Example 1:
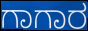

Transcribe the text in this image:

ಗಾಗಾರ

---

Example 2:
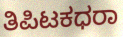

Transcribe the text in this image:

ತಿಪಿಟಕಧರಾ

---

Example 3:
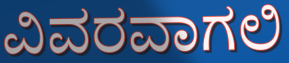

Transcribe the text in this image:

ವಿವರವಾಗಲಿ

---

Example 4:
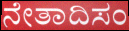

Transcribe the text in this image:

ನೇತಾದಿಸಂ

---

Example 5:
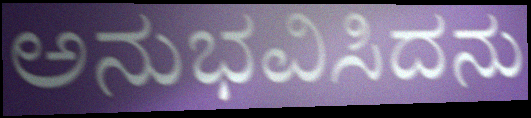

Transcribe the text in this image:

ಅನುಭವಿಸಿದನು